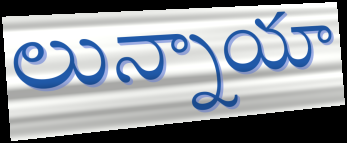
లున్నాయా